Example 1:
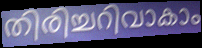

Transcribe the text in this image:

തിരിച്ചറിവാകാം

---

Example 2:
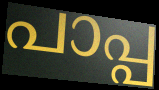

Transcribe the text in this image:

പാപ്പ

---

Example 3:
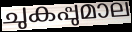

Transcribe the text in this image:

ചുകപ്പുമാല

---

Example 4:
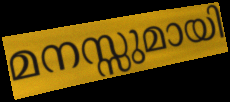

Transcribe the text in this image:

മനസ്സുമായി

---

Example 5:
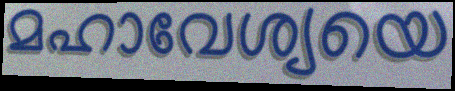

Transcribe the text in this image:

മഹാവേശ്യയെ